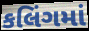
કલિંગમાં